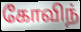
கோவிந்